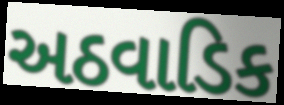
અઠવાડિક